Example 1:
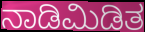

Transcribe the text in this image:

ನಾಡಿಮಿಡಿತ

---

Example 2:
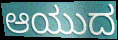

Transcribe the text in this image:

ಆಯುದ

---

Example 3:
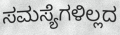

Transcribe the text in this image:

ಸಮಸ್ಯೆಗಳಿಲ್ಲದ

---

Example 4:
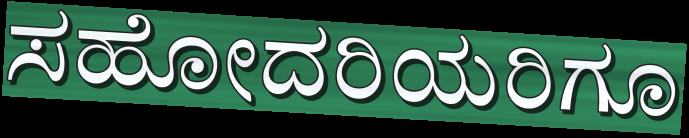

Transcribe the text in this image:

ಸಹೋದರಿಯರಿಗೂ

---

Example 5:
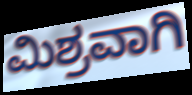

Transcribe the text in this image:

ಮಿಶ್ರವಾಗಿ